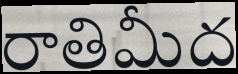
రాతిమీద